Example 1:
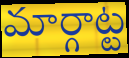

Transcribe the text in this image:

మార్గాట్ట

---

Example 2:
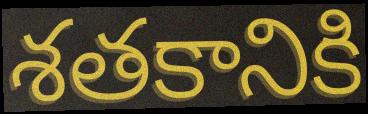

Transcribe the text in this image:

శతకానికి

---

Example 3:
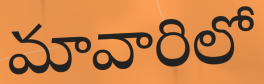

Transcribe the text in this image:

మావారిలో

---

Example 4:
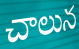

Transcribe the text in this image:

చాలున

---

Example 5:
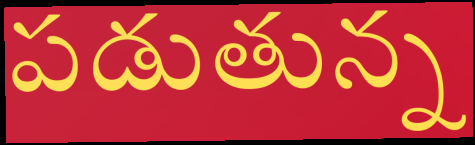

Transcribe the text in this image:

పడుతున్న